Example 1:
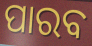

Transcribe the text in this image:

ପାରବ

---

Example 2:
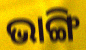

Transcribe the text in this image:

ଭାଙ୍ଗି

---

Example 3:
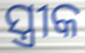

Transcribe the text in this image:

ସ୍ତ୍ରୀକ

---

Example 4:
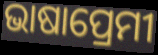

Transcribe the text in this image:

ଭାଷାପ୍ରେମୀ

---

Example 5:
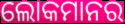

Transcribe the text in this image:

ଲୋକମାନର